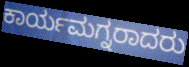
ಕಾರ್ಯಮಗ್ನರಾದರು